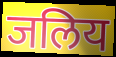
जलिय